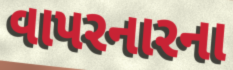
વાપરનારના